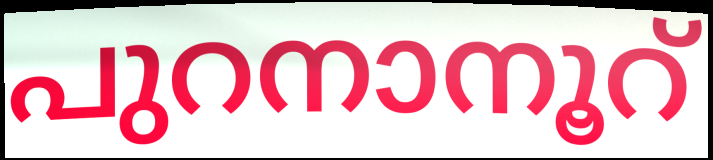
പുറനാനൂറ്